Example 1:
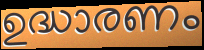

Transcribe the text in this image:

ഉദ്ധാരണം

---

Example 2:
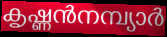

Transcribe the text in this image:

കൃഷ്ണൻനമ്പ്യാർ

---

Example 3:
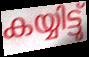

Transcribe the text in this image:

കയ്യിട്ടു്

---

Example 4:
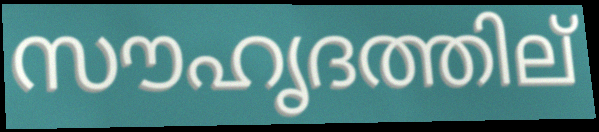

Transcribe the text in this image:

സൗഹൃദത്തില്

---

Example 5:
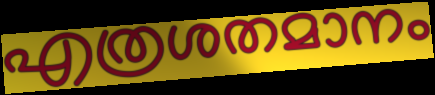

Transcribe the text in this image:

എത്രശതമാനം